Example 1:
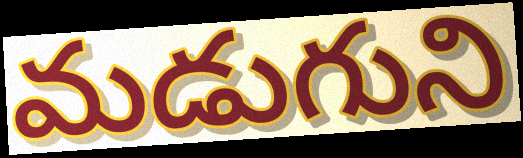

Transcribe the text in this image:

మడుగుని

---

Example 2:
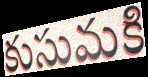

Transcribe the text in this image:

కుసుమకి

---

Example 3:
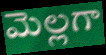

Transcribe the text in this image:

మెల్లగా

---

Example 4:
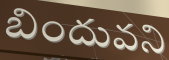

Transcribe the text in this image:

బిందువని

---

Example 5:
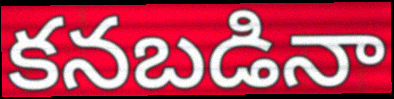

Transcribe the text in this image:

కనబడినా